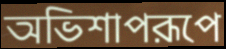
অভিশাপরূপে